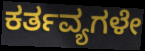
ಕರ್ತವ್ಯಗಳೇ